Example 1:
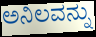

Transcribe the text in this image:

ಅನಿಲವನ್ನು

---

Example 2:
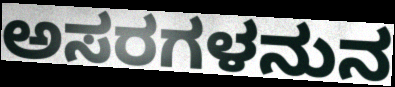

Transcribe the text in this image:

ಅಸರಗಳನುನ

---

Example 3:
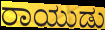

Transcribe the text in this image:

ರಾಯುಡು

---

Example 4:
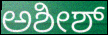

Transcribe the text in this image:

ಅಶೀಶ್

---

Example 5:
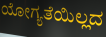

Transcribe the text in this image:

ಯೋಗ್ಯತೆಯಿಲ್ಲದ